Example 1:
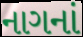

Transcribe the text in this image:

નાગનાં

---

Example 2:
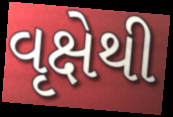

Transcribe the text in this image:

વૃક્ષેથી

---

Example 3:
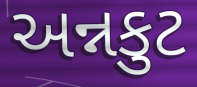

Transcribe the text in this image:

અન્નકુટ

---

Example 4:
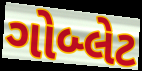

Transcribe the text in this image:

ગોબ્લેટ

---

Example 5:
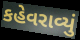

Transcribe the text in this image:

કહેવરાવ્યું